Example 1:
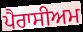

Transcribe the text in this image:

ਪੈਰਾਸੀਅਮ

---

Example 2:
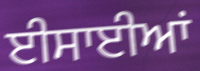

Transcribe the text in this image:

ਈਸਾਈਆਂ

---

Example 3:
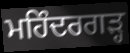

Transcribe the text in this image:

ਮਹਿੰਦਰਗੜ੍ਹ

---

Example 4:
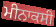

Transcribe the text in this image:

ਮੀਨਾਕਸੀ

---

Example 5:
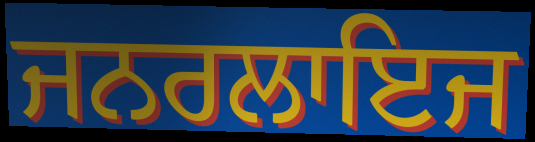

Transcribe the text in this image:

ਜਨਰਲਾਇਜ